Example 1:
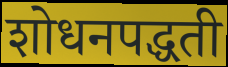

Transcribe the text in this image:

शोधनपद्धती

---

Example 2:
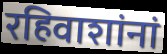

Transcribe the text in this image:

रहिवाशांनां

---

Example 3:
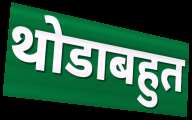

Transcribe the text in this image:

थोडाबहुत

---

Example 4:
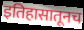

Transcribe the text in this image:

इतिहासातूनच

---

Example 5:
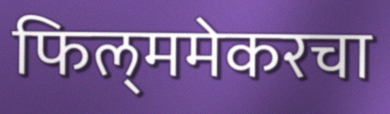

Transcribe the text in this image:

फिल्ममेकरचा